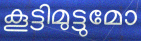
കൂട്ടിമുട്ടുമോ